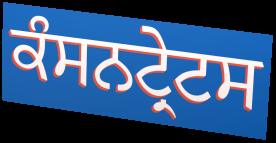
ਕੰਸਨਟ੍ਰੇਟਸ